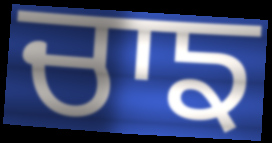
ਚਾਙ